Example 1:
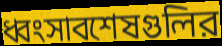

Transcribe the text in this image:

ধ্বংসাবশেষগুলির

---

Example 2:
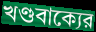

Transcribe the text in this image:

খণ্ডবাক্যের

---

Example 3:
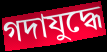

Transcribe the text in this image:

গদাযুদ্ধে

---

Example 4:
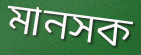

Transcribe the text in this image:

মানসক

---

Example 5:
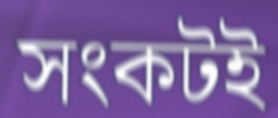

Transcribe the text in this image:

সংকটই